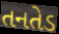
તનતેડ